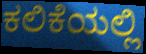
ಕಲಿಕೆಯಲ್ಲಿ